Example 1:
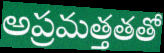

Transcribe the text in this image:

అప్రమత్తతతో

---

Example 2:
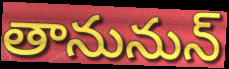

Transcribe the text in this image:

తానునున్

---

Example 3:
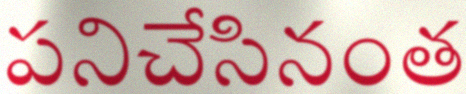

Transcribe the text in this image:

పనిచేసినంత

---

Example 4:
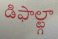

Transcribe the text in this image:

డిఫాల్ట్గా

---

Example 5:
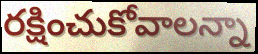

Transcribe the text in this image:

రక్షించుకోవాలన్నా